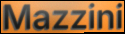
Mazzini